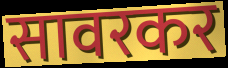
सावरकर